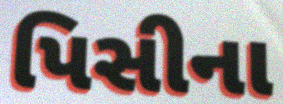
પિસીના